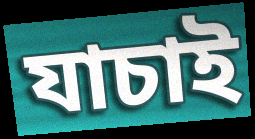
যাচাই